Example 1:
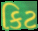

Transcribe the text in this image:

કિટ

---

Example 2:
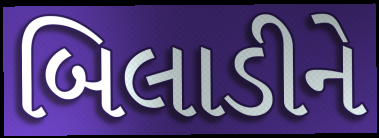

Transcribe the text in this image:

બિલાડીને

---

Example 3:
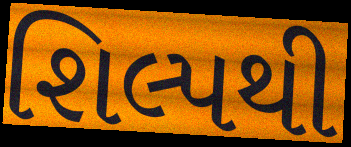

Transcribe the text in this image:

શિલ્પથી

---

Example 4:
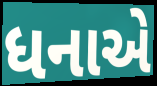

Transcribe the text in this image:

ધનાએ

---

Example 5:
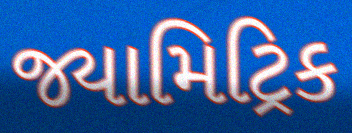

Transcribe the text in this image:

જ્યામિટ્રિક